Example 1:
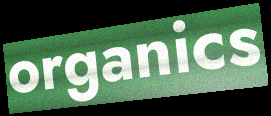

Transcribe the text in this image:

organics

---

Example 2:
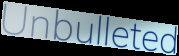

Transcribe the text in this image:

Unbulleted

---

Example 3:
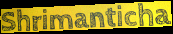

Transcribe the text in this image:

Shrimanticha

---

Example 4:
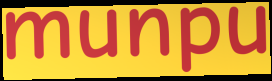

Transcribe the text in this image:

munpu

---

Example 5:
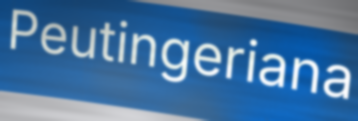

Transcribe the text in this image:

Peutingeriana